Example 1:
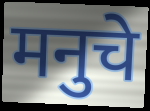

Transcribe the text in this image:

मनुचे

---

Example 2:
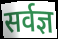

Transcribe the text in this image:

सर्वज्ञ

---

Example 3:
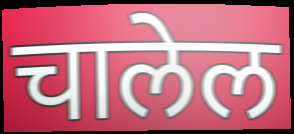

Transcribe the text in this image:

चालेल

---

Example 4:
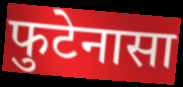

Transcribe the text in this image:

फुटेनासा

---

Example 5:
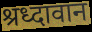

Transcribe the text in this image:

श्रध्दावान